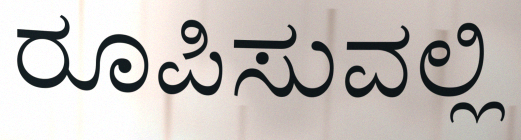
ರೂಪಿಸುವಲ್ಲಿ